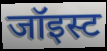
जॉइस्ट